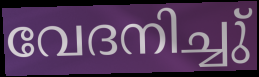
വേദനിച്ചു്